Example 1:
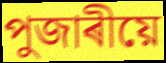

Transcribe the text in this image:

পুজাৰীয়ে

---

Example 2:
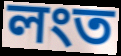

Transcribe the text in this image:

লংত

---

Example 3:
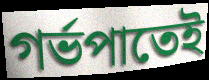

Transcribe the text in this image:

গৰ্ভপাতেই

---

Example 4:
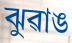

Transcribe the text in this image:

ঝুৱাঙ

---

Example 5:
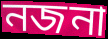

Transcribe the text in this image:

নজনা